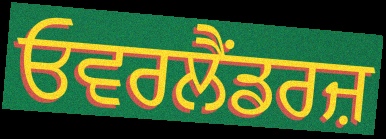
ਓਵਰਲੈਂਡਰਜ਼